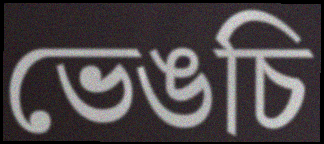
ভেঙচি